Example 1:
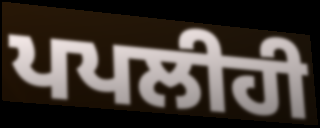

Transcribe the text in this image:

ਪਪਲੀਹੀ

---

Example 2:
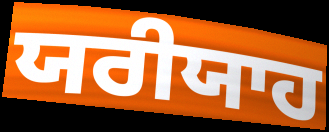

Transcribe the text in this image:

ਯਰੀਯਾਹ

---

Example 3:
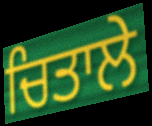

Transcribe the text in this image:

ਚਿਤਾਲੇ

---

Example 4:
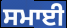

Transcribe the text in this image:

ਸਮਾਈ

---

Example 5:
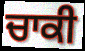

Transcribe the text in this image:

ਚਾਕੀ